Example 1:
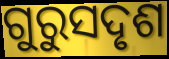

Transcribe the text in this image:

ଗୁରୁସଦୃଶ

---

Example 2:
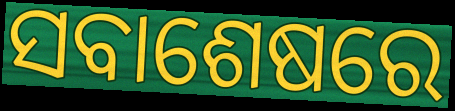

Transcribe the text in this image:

ସବାଶେଷରେ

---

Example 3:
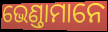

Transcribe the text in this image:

ଭେଣ୍ଡାମାନେ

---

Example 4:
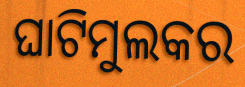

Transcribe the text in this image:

ଘାଟିମୁଲକର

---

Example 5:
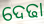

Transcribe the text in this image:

ଦେଢା